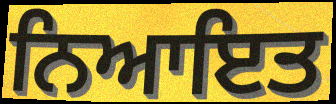
ਨਿਆਇਤ